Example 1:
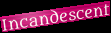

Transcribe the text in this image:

Incandescent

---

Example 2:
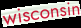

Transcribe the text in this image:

wisconsin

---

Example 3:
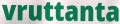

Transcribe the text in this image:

vruttanta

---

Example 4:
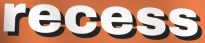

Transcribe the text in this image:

recess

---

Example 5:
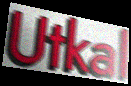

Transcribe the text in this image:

Utkal